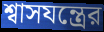
শ্বাসযন্ত্রের